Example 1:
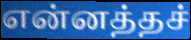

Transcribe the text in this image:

என்னத்தச்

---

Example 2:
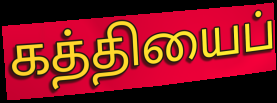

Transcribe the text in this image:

கத்தியைப்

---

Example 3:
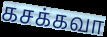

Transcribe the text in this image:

கசக்கவா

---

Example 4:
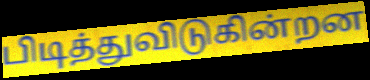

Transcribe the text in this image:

பிடித்துவிடுகின்றன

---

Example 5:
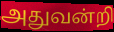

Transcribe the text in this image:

அதுவன்றி